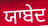
ਯਾਬੇਦ